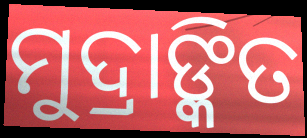
ମୁଦ୍ରାଙ୍କିତ